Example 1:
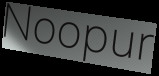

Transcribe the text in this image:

Noopur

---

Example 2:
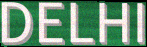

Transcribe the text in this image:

DELHI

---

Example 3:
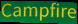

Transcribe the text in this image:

Campfire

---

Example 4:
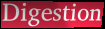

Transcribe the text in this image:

Digestion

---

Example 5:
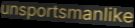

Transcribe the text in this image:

unsportsmanlike